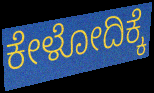
ಕೇಳೋದಿಕ್ಕೆ